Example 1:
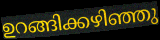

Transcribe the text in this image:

ഉറങ്ങിക്കഴിഞ്ഞു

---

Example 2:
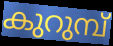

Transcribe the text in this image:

കുറുമ്പ്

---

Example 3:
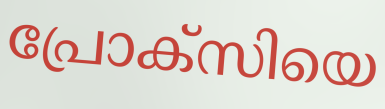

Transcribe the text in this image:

പ്രോക്സിയെ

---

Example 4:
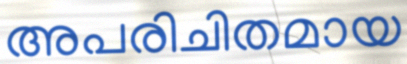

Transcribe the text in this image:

അപരിചിതമായ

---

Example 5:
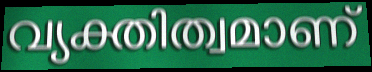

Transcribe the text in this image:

വ്യക്തിത്വമാണ്